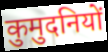
कुमुदनियों